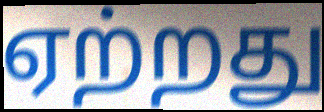
ஏற்றது